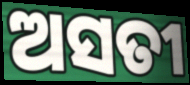
ଅସତୀ